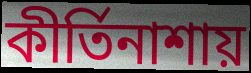
কীর্তিনাশায়